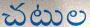
చటుల